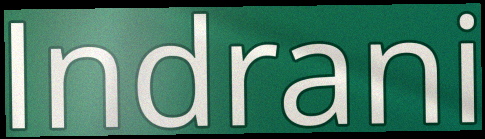
Indrani